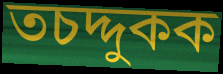
তচদ্দুকক